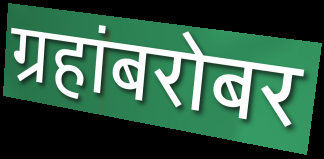
ग्रहांबरोबर